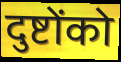
दुष्टोंको